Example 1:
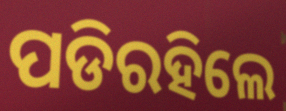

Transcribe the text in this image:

ପଡିରହିଲେ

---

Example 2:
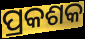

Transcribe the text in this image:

ପ୍ରକଶକ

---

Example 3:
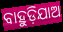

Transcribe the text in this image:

ବାହୁଡ଼ିଯାଅ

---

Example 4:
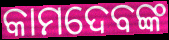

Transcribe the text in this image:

କାମଦେବଙ୍କ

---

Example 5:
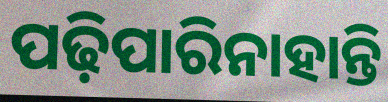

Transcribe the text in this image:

ପଢ଼ିପାରିନାହାନ୍ତି